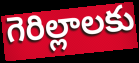
గెరిల్లాలకు